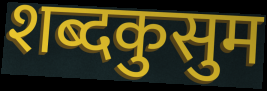
शब्दकुसुम